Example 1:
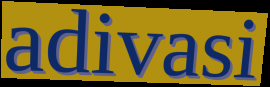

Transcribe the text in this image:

adivasi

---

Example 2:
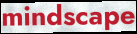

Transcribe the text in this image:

mindscape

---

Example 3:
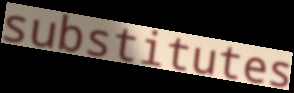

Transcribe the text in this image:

substitutes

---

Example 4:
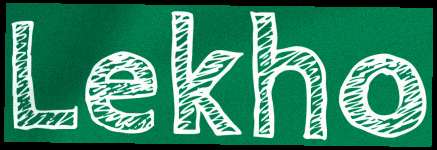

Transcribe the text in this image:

Lekho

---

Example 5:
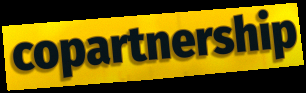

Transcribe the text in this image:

copartnership